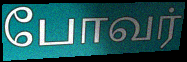
போவர்